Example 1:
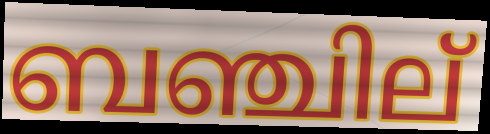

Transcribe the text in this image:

ബഞ്ചില്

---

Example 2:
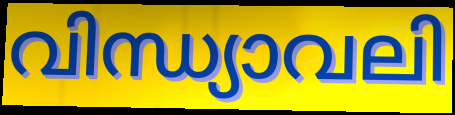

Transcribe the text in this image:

വിന്ധ്യാവലി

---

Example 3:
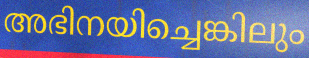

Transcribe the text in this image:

അഭിനയിച്ചെങ്കിലും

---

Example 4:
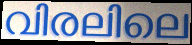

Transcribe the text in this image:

വിരലിലെ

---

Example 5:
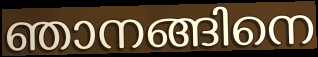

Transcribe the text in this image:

ഞാനങ്ങിനെ